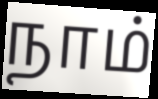
நாம்